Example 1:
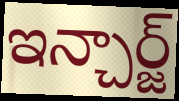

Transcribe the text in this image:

ఇన్చార్జ్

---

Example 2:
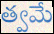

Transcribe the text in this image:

త్వమే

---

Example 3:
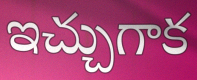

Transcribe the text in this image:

ఇచ్చుగాక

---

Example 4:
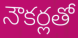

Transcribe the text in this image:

నౌకర్లతో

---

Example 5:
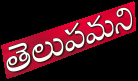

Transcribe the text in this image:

తెలుపమని